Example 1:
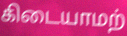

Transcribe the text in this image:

கிடையாமற்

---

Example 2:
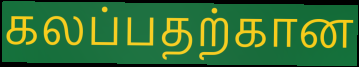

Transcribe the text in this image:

கலப்பதற்கான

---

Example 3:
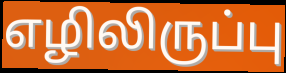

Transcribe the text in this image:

எழிலிருப்பு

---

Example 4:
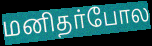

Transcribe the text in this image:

மனிதர்போல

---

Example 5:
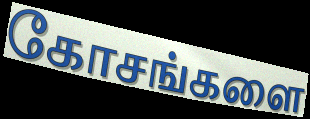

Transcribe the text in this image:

கோசங்களை